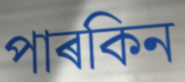
পাৰকিন